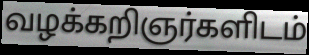
வழக்கறிஞர்களிடம்